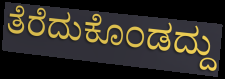
ತೆರೆದುಕೊಂಡದ್ದು